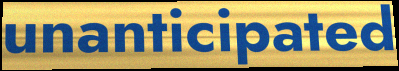
unanticipated